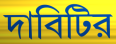
দাবিটির